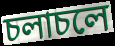
চলাচলে